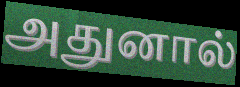
அதுனால்